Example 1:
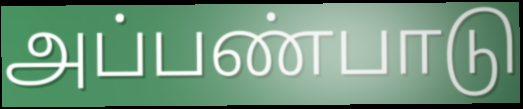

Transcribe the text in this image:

அப்பண்பாடு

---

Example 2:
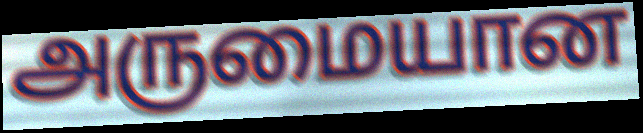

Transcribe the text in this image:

அருமையான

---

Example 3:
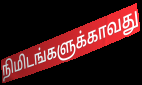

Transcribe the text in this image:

நிமிடங்களுக்காவது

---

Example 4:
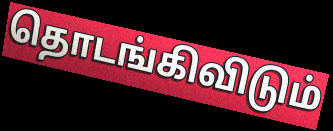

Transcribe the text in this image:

தொடங்கிவிடும்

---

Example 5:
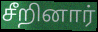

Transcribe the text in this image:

சீறினார்